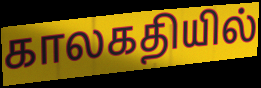
காலகதியில்